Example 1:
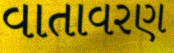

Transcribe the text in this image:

વાતાવરણ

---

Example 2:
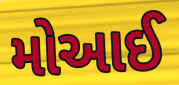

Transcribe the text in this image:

મોઆઈ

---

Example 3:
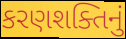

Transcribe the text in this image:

કરણશક્તિનું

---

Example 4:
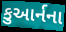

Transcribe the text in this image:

કુઆર્નના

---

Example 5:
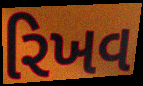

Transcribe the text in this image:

રિખવ